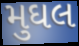
મુઘલ